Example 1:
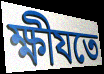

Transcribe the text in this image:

ক্ষীযতে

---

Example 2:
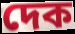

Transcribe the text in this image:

দেক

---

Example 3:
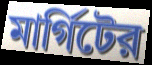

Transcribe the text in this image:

মার্গিটের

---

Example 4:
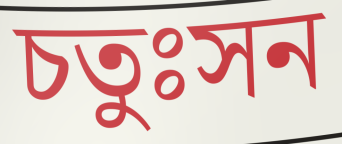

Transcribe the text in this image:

চতুঃসন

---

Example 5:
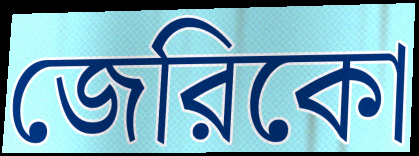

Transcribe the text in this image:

জেরিকো